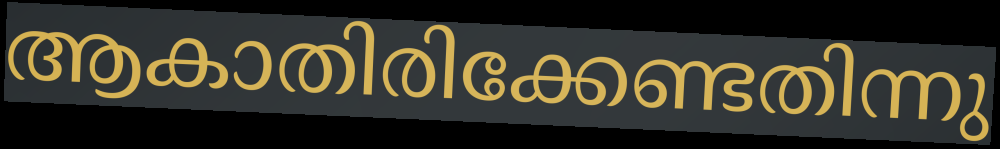
ആകാതിരിക്കേണ്ടതിന്നു